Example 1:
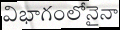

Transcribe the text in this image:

విభాగంలోనైనా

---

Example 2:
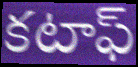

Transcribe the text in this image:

కటాఫ్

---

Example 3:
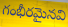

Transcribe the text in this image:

గంభీరమైనవి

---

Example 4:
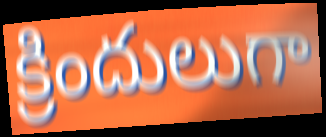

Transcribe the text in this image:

క్రిందులుగా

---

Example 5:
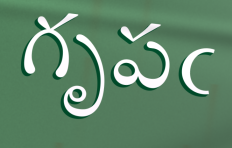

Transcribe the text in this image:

గృపఁ